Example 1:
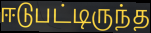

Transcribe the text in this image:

ஈடுபட்டிருந்த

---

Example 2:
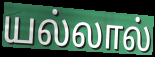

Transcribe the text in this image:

யல்லால்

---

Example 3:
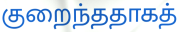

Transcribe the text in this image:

குறைந்ததாகத்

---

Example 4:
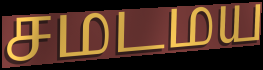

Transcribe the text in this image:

சமடமய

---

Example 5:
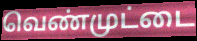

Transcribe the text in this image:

வெண்முட்டை